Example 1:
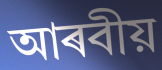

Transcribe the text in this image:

আৰবীয়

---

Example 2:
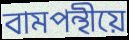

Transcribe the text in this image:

বামপন্থীয়ে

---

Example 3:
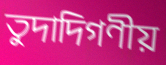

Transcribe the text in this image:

তুদাদিগণীয়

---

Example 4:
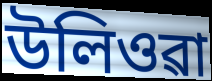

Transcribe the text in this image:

উলিওৱা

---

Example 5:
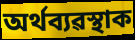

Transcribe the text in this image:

অৰ্থব্যৱস্থাক